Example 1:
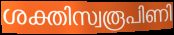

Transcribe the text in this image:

ശക്തിസ്വരൂപിണി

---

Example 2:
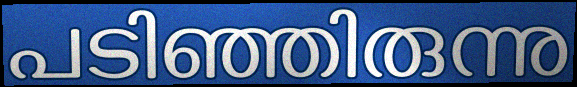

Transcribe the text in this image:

പടിഞ്ഞിരുന്നു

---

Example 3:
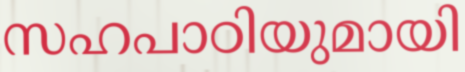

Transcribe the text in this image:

സഹപാഠിയുമായി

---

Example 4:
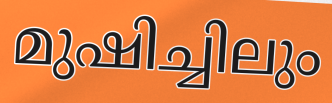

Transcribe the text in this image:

മുഷിച്ചിലും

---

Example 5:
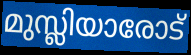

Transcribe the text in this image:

മുസ്ലിയാരോട്